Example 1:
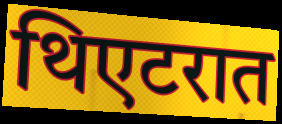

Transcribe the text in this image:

थिएटरात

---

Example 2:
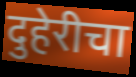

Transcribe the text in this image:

दुहेरीचा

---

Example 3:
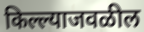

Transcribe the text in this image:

किल्ल्याजवळील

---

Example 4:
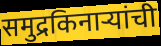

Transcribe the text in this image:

समुद्रकिनाऱ्यांची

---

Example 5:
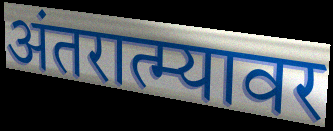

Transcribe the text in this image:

अंतरात्म्यावर